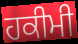
ਹਕੀਮੀ